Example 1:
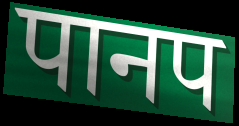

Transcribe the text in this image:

पानप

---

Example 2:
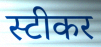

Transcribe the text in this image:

स्टीकर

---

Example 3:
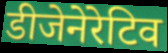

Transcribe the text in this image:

डीजेनेरेटिव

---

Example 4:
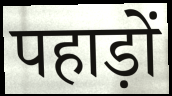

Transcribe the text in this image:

पहाड़ों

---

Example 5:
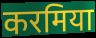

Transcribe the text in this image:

करमिया